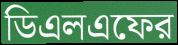
ডিএলএফের